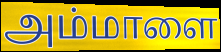
அம்மாளை